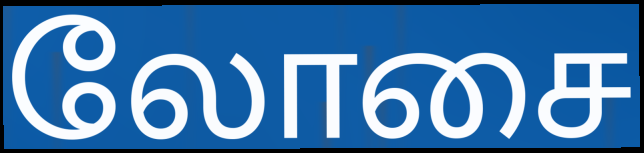
லோசை